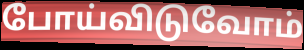
போய்விடுவோம்